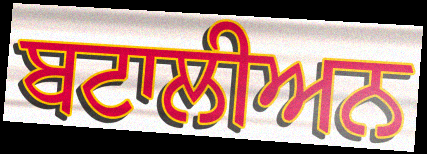
ਬਟਾਲੀਅਨ